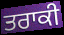
ਤਰਾਕੀ